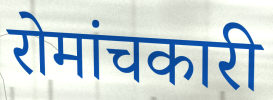
रोमांचकारी